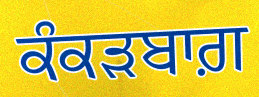
ਕੰਕੜਬਾਗ਼